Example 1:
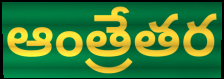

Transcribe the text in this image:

ఆంత్రేతర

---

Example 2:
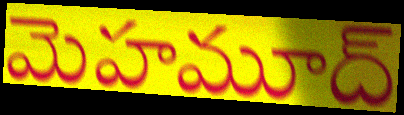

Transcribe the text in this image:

మెహమూద్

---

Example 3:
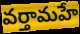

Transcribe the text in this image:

వర్తామహే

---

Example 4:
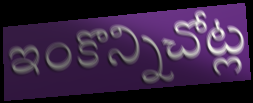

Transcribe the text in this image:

ఇంకొన్నిచోట్ల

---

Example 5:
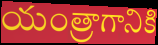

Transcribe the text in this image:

యంత్రాగానికి